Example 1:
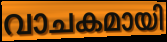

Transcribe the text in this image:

വാചകമായി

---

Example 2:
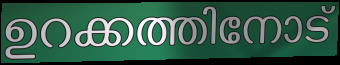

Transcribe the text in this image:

ഉറക്കത്തിനോട്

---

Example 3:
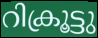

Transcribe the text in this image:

റിക്രൂട്ടു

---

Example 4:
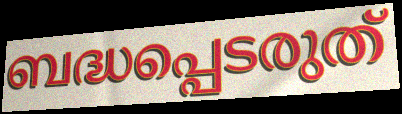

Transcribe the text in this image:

ബദ്ധപ്പെടരുത്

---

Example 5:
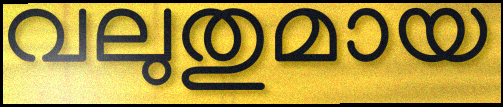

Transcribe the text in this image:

വലുതുമായ